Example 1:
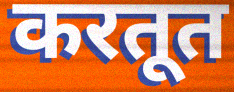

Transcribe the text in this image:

करतूत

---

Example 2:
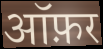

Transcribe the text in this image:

ऑफ़र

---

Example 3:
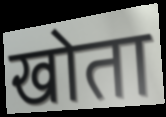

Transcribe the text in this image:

खोता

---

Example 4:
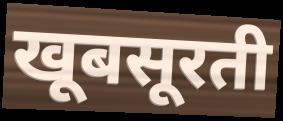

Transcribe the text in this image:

खूबसूरती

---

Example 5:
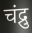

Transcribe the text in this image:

चंद्रु